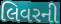
લિવરની